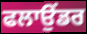
ਫਲਾਉਂਡਰ